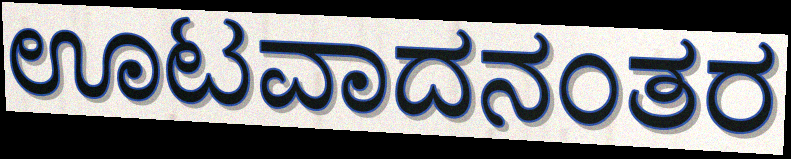
ಊಟವಾದನಂತರ